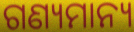
ଗଣ୍ୟମାନ୍ୟ